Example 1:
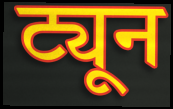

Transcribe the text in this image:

ट्यून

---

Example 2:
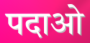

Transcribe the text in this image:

पदाओ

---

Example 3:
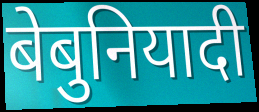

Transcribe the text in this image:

बेबुनियादी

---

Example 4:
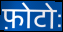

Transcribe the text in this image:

फ़ोटोः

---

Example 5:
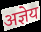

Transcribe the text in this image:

अज्ञेय